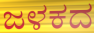
ಜಳಕದ